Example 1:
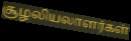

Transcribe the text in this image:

சூழலியலாளர்கள்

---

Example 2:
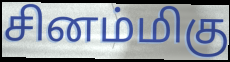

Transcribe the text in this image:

சினம்மிகு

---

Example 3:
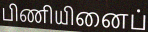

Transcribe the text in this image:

பிணியினைப்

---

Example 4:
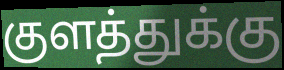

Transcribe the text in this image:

குளத்துக்கு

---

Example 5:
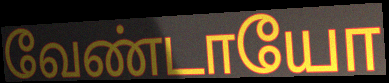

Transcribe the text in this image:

வேண்டாயோ